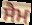
ਸੈਮ